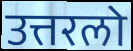
उत्तरलो